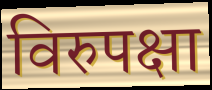
विरुपक्षा